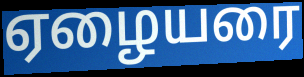
ஏழையரை